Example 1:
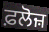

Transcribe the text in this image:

ਫ਼ਲੋਜ਼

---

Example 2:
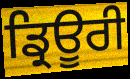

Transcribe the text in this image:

ਡ੍ਰਿਊਰੀ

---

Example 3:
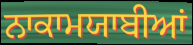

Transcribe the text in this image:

ਨਾਕਾਮਯਾਬੀਆਂ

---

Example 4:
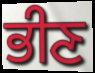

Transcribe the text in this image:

ਭੀਣ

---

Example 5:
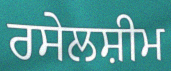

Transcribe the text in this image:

ਰਸੇਲਸ਼ੀਮ